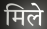
मिले